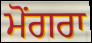
ਮੋਂਗਰਾ